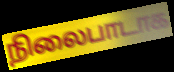
நிலைபாடாக